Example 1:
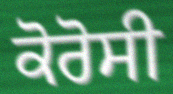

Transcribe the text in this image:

ਕੋਰੋਸੀ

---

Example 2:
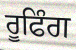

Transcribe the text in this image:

ਰੂਫਿੰਗ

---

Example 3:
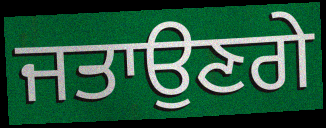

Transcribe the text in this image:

ਜਤਾਉਣਗੇ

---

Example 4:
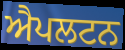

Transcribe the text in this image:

ਐਪਲਟਨ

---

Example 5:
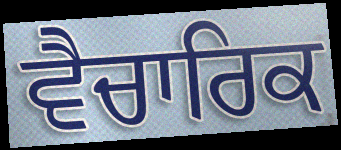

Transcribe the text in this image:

ਵੈਚਾਰਿਕ